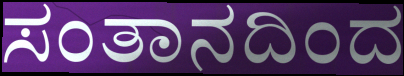
ಸಂತಾನದಿಂದ